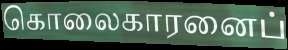
கொலைகாரனைப்